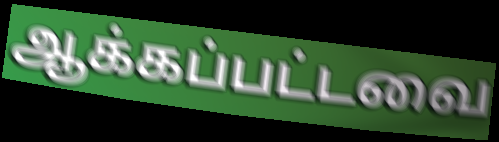
ஆக்கப்பட்டவை